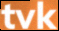
tvk